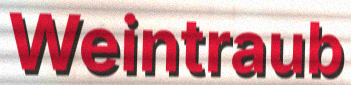
Weintraub